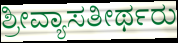
ಶ್ರೀವ್ಯಾಸತೀರ್ಥರು